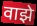
वाझे